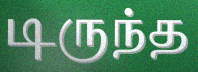
டிருந்த